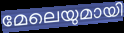
മേലെയുമായി